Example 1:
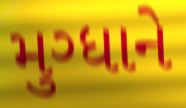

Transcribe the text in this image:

મુગ્ધાને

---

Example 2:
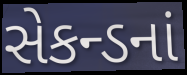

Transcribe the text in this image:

સેકન્ડનાં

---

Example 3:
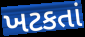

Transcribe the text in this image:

ખટકતાં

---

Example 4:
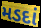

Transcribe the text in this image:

મડદાં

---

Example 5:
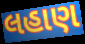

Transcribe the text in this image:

લહાણ